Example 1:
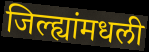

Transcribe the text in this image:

जिल्ह्यांमधली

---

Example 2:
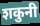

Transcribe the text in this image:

शकुनी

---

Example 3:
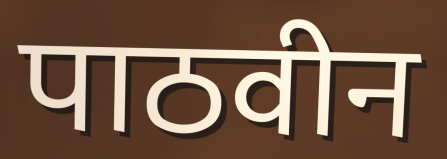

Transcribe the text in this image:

पाठवीन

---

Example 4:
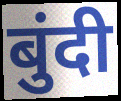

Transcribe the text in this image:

बुंदी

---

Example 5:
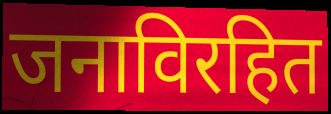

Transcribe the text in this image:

जनाविरहित